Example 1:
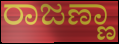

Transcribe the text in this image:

ರಾಜಣ್ಣಾ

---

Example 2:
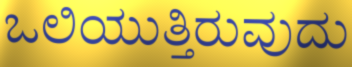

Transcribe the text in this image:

ಒಲಿಯುತ್ತಿರುವುದು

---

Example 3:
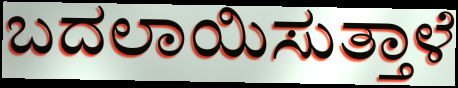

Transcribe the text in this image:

ಬದಲಾಯಿಸುತ್ತಾಳೆ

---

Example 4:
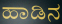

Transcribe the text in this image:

ಹಾಡಿನ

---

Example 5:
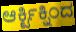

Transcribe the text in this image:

ಆರ್ಕ್ಟಿಕ್ನಿಂದ